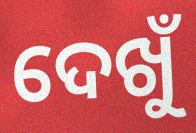
ଦେଖୁଁ